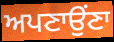
ਅਪਣਾਉਂਣਾ